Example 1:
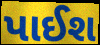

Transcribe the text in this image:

પાઈશ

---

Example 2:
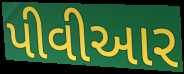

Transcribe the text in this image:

પીવીઆર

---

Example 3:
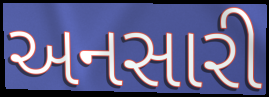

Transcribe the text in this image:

અનસારી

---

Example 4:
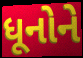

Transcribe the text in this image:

ધૂનોને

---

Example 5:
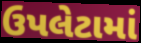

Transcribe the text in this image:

ઉપલેટામાં